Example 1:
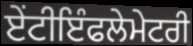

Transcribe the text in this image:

ਏੰਟੀਇੰਫਲੇਮੇਟਰੀ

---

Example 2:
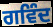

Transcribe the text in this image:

ਗਵਿੰਦ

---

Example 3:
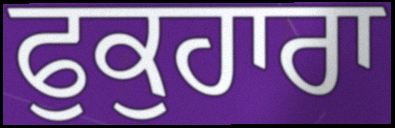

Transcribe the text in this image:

ਫੁਕੁਹਾਰਾ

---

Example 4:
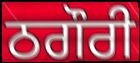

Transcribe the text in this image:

ਠਗੌਰੀ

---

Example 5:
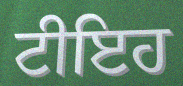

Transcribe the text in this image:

ਟੀਇਹ